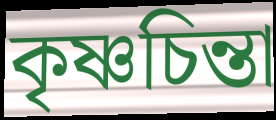
কৃষ্ণচিন্তা